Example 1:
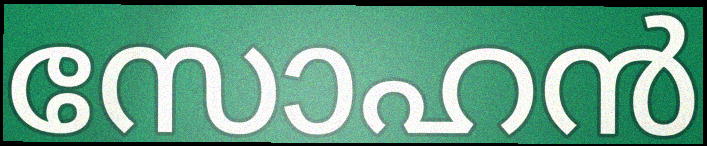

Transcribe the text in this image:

സോഹൻ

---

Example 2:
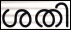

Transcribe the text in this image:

ശതി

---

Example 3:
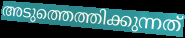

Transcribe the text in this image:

അടുത്തെത്തിക്കുന്നത്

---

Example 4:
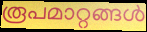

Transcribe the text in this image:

രൂപമാറ്റങ്ങൾ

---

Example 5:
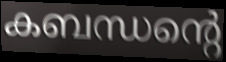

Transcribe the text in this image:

കബന്ധന്റെ